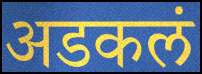
अडकलं